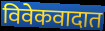
विवेकवादात